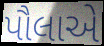
પૌલાએ